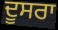
ਦੂਸਰਾ